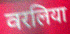
वरलिया